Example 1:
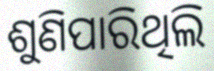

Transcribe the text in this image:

ଶୁଣିପାରିଥିଲି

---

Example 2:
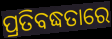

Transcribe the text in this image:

ପ୍ରତିବଦ୍ଧତାରେ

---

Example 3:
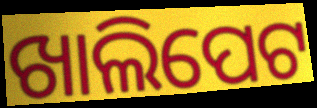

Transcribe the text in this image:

ଖାଲିପେଟ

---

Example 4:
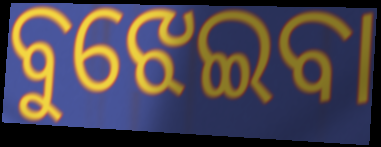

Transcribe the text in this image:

ବୁଝେଇବା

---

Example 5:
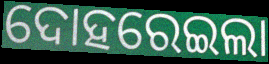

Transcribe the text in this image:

ଦୋହରେଇଲା